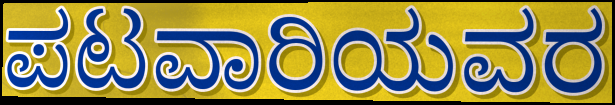
ಪಟವಾರಿಯವರ